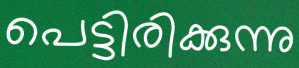
പെട്ടിരിക്കുന്നു